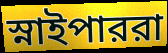
স্নাইপাররা